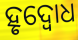
ହୃଦ୍ବୋଧ